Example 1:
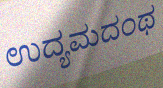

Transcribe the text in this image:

ಉದ್ಯಮದಂಥ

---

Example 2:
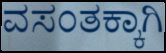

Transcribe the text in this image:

ವಸಂತಕ್ಕಾಗಿ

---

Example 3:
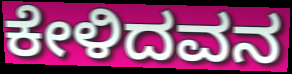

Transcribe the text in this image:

ಕೇಳಿದವನ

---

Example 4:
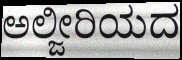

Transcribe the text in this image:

ಅಲ್ಜೀರಿಯದ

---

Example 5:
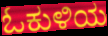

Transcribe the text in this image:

ಓಕುಳಿಯ